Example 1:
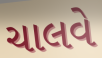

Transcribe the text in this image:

ચાલવે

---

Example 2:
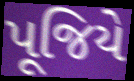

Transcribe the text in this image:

પૂજિયે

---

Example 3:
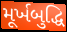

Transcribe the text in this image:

મૂર્ખબુદ્ધિ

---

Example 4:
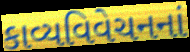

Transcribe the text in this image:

કાવ્યવિવેચનનાં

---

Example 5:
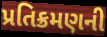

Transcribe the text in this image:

પ્રતિક્રમણની